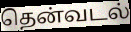
தென்வடல்